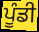
ਪੂੰਡੀ